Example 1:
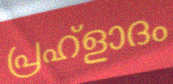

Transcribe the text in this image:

പ്രഹ്ളാദം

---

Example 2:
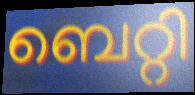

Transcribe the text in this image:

ബെറ്റി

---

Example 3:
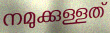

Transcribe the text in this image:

നമുക്കുള്ളത്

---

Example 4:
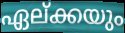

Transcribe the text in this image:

ഏല്ക്കയും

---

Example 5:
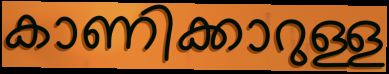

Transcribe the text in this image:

കാണിക്കാറുള്ള